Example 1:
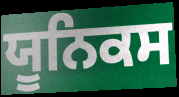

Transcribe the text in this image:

ਯੂਨਿਕਸ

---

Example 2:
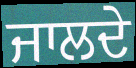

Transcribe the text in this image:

ਜਾਲਦੇ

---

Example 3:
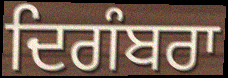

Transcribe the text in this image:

ਦਿਗੰਬਰਾ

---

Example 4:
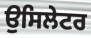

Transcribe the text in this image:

ਉਸਿਲੇਟਰ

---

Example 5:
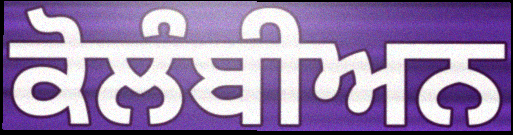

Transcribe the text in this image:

ਕੋਲੰਬੀਅਨ